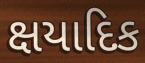
ક્ષયાદિક